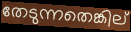
തേടുന്നതെങ്കില്